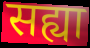
सह्या